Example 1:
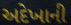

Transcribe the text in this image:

અદેખાની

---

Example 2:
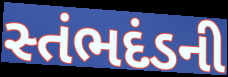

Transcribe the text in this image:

સ્તંભદંડની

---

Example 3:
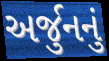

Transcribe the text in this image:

અર્જુનનું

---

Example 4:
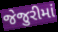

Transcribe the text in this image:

જેજુરીમાં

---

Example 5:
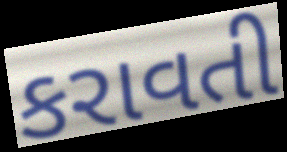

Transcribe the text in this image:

કરાવતી